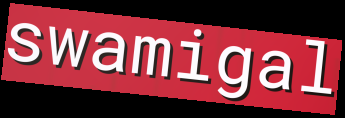
swamigal